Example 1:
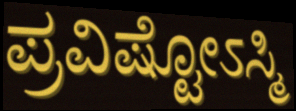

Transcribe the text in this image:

ಪ್ರವಿಷ್ಟೋಽಸ್ಮಿ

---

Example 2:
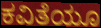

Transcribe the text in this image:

ಕವಿತೆಯೂ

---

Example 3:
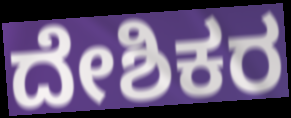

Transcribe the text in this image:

ದೇಶಿಕರ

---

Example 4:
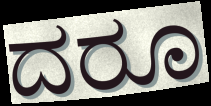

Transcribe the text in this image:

ದರೂ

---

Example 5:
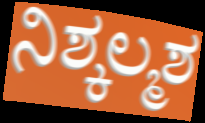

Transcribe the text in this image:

ನಿಶ್ಕಲ್ಮಶ